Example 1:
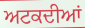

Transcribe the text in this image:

ਅਟਕਦੀਆਂ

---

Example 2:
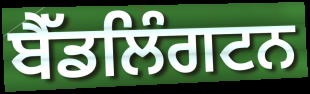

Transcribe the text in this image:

ਬੈੱਡਲਿੰਗਟਨ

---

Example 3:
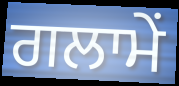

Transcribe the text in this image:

ਗਲਾਮੇਂ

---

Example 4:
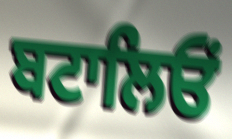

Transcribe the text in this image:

ਬਟਾਲਿਓਂ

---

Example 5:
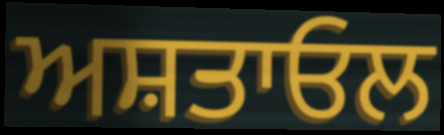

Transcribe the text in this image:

ਅਸ਼ਤਾਓਲ